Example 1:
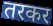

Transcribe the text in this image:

तरकर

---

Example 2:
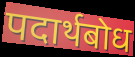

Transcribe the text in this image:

पदार्थबोध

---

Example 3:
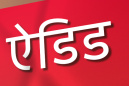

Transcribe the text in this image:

ऐडिड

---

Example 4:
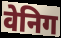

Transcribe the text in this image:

वेनिग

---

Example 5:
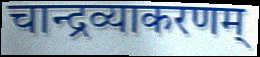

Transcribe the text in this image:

चान्द्रव्याकरणम्